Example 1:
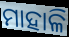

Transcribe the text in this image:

ମାହାଳି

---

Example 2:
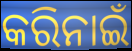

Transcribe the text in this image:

କରିନାଇଁ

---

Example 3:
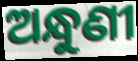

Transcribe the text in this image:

ଅନ୍ଧୁଣୀ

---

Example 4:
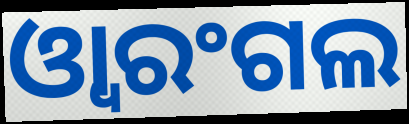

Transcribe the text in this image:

ଓ୍ୱାରଂଗଲ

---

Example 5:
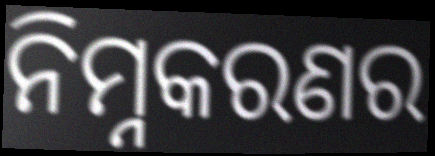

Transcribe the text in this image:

ନିମ୍ନକରଣର